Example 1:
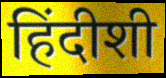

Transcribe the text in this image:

हिंदीशी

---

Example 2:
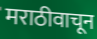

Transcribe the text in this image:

मराठीवाचून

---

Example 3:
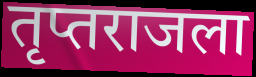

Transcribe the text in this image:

तृप्तराजला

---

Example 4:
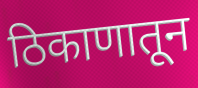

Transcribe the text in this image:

ठिकाणातून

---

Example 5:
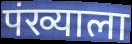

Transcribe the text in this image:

पंख्याला